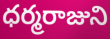
ధర్మరాజుని